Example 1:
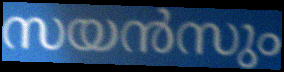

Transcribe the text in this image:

സയൻസും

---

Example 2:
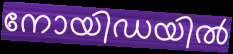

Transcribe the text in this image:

നോയിഡയിൽ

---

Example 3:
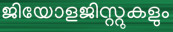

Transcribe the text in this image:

ജിയോളജിസ്റ്റുകളും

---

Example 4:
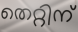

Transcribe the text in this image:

തെറ്റിന്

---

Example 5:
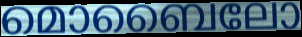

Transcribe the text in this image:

മൊബൈലോ